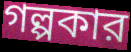
গল্পকার